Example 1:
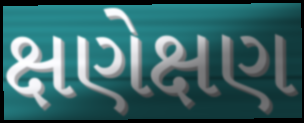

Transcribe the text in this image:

ક્ષણેક્ષણ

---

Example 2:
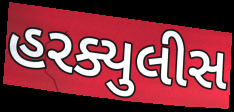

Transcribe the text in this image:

હરક્યુલીસ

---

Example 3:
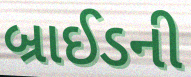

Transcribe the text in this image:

બ્રાઈડની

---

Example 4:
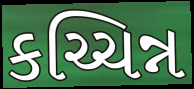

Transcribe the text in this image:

કચ્ચિન્ન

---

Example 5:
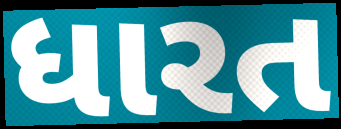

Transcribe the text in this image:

ધારત